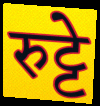
रुट्टे